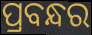
ପ୍ରବନ୍ଧର